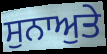
ਸੁਨਾਅੁਤੇ